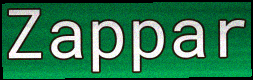
Zappar